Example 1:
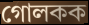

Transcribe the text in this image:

গোলকক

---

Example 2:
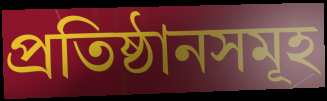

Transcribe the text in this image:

প্ৰতিষ্ঠানসমূহ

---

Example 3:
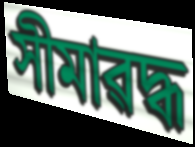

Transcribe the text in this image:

সীমাৱদ্ধ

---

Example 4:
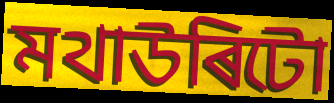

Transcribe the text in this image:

মথাউৰিটো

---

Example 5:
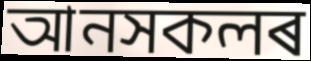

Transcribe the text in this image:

আনসকলৰ